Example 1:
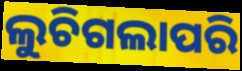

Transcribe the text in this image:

ଲୁଚିଗଲାପରି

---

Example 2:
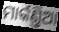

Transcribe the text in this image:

ମାର୍କଣ୍ତିଆ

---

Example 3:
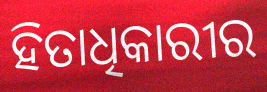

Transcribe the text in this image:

ହିତାଧିକାରୀର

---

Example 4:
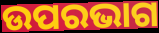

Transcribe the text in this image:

ଉପରଭାଗ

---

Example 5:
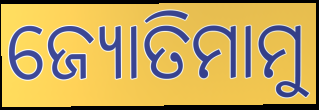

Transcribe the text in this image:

ଜ୍ୟୋତିମାମୁ